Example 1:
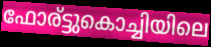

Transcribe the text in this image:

ഫോര്ട്ടുകൊച്ചിയിലെ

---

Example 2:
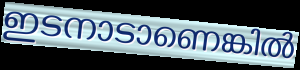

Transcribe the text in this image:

ഇടനാടാണെങ്കിൽ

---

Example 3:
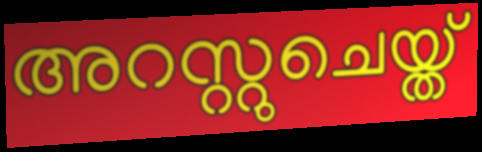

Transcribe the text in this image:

അറസ്റ്റുചെയ്ത്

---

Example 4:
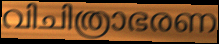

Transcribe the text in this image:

വിചിത്രാഭരണ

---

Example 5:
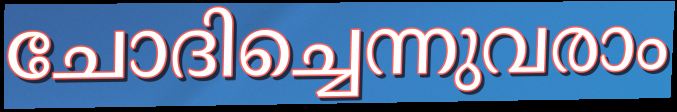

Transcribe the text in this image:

ചോദിച്ചെന്നുവരാം